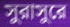
সুরাসুরে